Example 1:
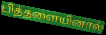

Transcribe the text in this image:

பித்தளையினால்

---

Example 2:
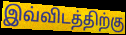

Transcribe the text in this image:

இவ்விடத்திற்கு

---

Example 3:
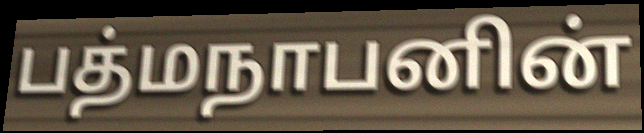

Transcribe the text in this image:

பத்மநாபனின்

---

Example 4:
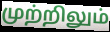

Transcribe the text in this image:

முற்றிலும்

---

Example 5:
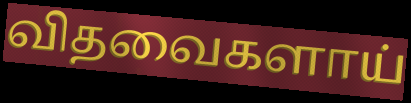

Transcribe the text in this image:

விதவைகளாய்